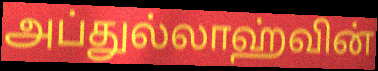
அப்துல்லாஹ்வின்